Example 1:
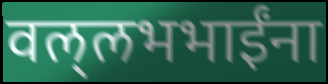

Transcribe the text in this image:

वल्लभभाईंना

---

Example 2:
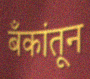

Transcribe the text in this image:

बँकांतून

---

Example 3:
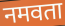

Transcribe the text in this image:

नमवता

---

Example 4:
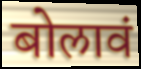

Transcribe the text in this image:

बोलावं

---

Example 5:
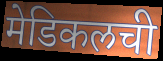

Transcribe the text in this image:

मेडिकलची